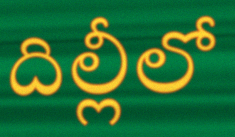
దిల్లీలో